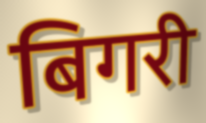
बिगरी